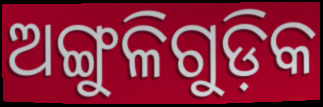
ଅଙ୍ଗୁଳିଗୁଡ଼ିକ